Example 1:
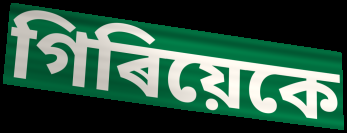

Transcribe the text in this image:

গিৰিয়েকে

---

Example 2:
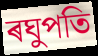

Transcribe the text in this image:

ৰঘুপতি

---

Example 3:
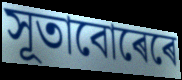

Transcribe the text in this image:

সূতাবোৰেৰে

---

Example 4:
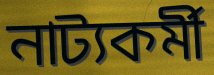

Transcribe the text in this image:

নাট্যকৰ্মী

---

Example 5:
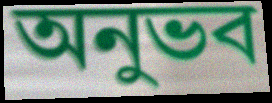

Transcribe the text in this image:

অনুভব